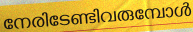
നേരിടേണ്ടിവരുമ്പോൾ